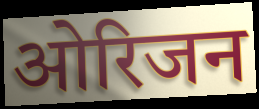
ओरिजन